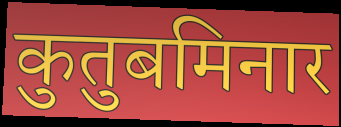
कुतुबमिनार